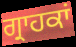
ਗ੍ਰਾਹਕਾਂ